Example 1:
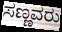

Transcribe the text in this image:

ಸಣ್ಣವರು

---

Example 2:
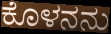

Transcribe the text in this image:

ಕೊಳನನು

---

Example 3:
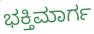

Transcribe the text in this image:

ಭಕ್ತಿಮಾರ್ಗ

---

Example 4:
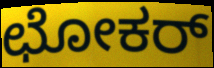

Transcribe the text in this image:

ಛೋಕರ್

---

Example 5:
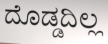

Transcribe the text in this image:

ದೊಡ್ಡದಿಲ್ಲ